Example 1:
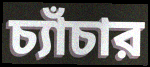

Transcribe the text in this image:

চ্যাঁচার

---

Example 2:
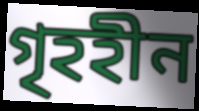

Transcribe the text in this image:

গৃহহীন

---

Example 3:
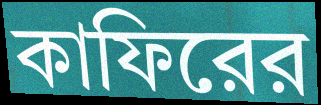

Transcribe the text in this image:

কাফিরের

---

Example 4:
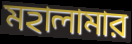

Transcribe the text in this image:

মহালামার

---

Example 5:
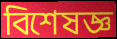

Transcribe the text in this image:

বিশেষজ্ঞ